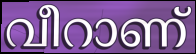
വീറാണ്